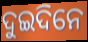
ଦୁଇଦିନେ